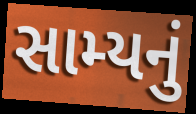
સામ્યનું